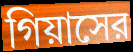
গিয়াসের